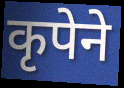
कृपेने